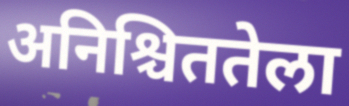
अनिश्चिततेला